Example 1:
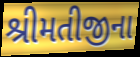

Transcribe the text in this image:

શ્રીમતીજીના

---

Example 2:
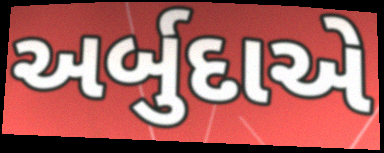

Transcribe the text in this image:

અર્બુદાએ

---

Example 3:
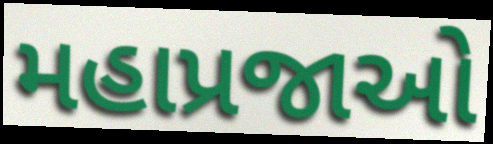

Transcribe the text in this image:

મહાપ્રજાઓ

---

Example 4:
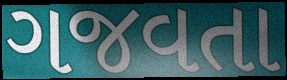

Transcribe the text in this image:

ગજવતા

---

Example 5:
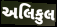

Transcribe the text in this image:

અલિકુલ